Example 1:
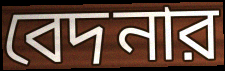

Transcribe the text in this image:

বেদনার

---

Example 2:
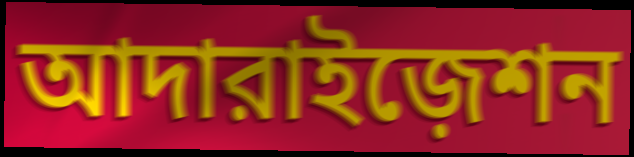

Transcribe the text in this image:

আদারাইজ়েশন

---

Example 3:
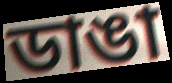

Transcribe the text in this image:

ডাঙা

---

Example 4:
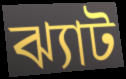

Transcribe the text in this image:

ঝ্যাট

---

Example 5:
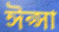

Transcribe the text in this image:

ঈপ্সা